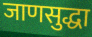
जाणसुद्धा